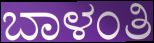
ಬಾಳಂತಿ